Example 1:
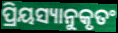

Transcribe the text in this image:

ପ୍ରିୟସ୍ୟାନୁକୃତଂ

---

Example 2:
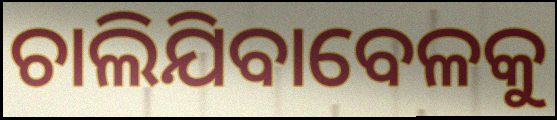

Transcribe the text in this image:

ଚାଲିଯିବାବେଳକୁ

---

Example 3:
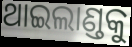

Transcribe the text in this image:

ଥାଇଲାଣ୍ଡକୁ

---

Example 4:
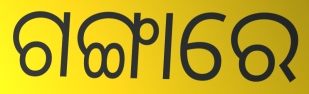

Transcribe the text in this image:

ଗଙ୍ଗାରେ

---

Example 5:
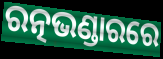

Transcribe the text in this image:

ରତ୍ନଭଣ୍ଡାରରେ